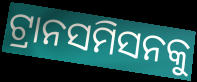
ଟ୍ରାନସମିସନକୁ